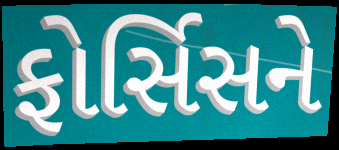
ફોર્સિસને